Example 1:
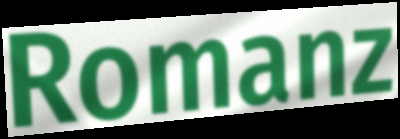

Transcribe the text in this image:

Romanz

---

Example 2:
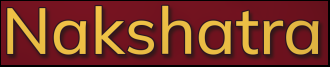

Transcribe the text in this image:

Nakshatra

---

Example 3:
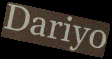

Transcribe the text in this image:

Dariyo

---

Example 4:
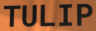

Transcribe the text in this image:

TULIP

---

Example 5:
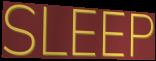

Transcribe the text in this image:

SLEEP